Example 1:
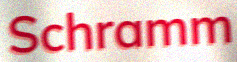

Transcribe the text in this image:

Schramm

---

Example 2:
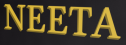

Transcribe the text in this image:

NEETA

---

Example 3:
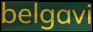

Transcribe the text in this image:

belgavi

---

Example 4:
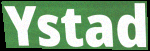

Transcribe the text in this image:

Ystad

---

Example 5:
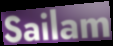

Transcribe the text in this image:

Sailam